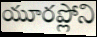
యూరప్లోని